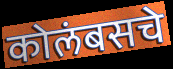
कोलंबसचे